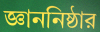
জ্ঞাননিষ্ঠার